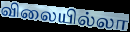
விலையில்லா